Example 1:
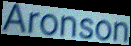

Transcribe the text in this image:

Aronson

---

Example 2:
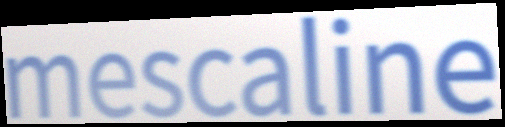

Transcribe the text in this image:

mescaline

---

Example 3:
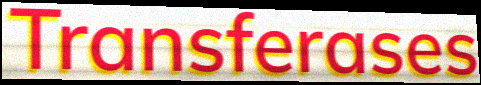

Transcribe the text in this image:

Transferases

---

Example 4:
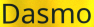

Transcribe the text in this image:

Dasmo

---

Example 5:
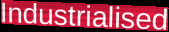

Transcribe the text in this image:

Industrialised